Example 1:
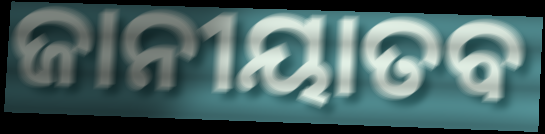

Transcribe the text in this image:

ଜାନୀୟାତବ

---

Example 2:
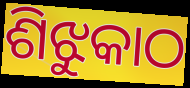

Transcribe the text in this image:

ଶିଝୁକାଠ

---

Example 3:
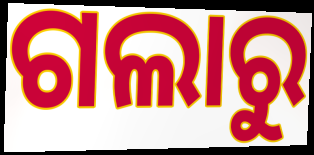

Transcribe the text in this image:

ଗଲାରୁ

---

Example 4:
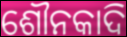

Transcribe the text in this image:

ଶୌନକାଦି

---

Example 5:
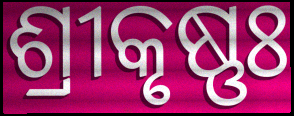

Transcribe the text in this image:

ଶ୍ରୀକୃଷ୍ଣଃ